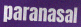
paranasal